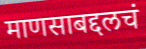
माणसाबद्दलचं